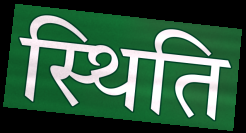
स्‍थिति